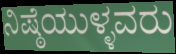
ನಿಷ್ಠೆಯುಳ್ಳವರು